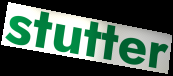
stutter